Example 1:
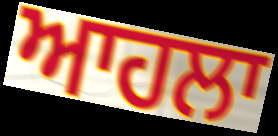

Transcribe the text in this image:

ਆਹਲਾ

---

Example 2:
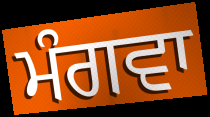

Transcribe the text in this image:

ਮੰਗਵਾ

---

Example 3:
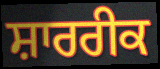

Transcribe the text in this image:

ਸ਼ਾਰਰੀਕ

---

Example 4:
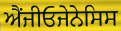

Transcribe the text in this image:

ਐਂਜੀਓਜੇਨੇਸਿਸ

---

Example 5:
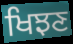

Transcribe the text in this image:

ਖਿਝਣ